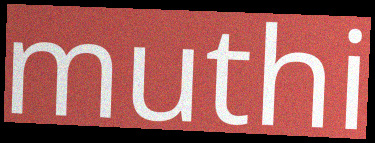
muthi